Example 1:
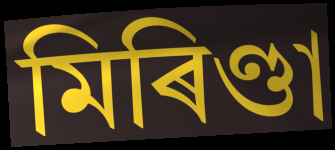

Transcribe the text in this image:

মিৰিণ্ডা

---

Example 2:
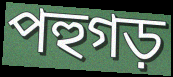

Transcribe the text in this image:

পহুগড়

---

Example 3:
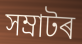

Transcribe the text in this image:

সম্ৰাটৰ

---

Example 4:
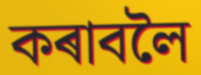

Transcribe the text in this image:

কৰাবলৈ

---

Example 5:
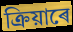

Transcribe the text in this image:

ক্ৰিয়াৰে